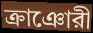
ক্রাঞোরী